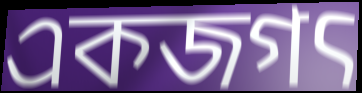
একজগৎ